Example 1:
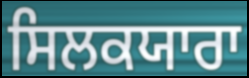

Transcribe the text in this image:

ਸਿਲਕਯਾਰਾ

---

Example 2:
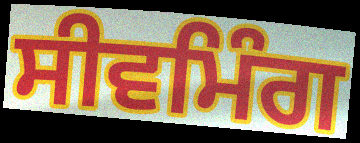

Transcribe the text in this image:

ਸੀਵਮਿੰਗ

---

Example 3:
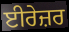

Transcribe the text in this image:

ਈਰੇਜ਼ਰ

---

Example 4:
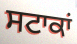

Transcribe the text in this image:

ਸਟਾਕਾਂ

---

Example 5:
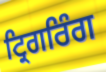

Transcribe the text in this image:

ਟ੍ਰਿਗਰਿੰਗ